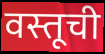
वस्तूची